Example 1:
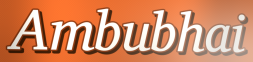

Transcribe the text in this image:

Ambubhai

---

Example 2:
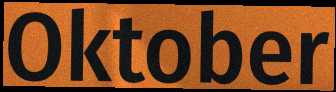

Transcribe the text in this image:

Oktober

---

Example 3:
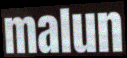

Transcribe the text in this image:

malun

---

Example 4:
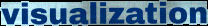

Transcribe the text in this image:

visualization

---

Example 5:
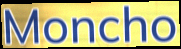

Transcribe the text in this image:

Moncho